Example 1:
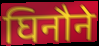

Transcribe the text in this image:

घिनौने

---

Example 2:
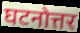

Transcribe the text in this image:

घटनोत्तर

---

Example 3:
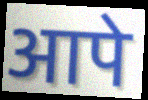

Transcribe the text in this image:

आपे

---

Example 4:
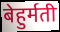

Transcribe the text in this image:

बेहुर्मती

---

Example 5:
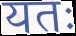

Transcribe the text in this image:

यतः